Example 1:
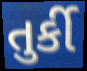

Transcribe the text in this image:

તુર્કી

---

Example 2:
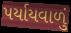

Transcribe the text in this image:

પર્યાયવાળું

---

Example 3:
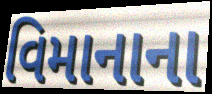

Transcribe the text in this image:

વિમાનાના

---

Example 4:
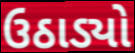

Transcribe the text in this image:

ઉઠાડ્યો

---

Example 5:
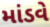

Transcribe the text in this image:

માંડવે